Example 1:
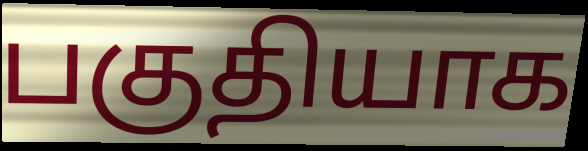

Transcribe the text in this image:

பகுதியாக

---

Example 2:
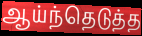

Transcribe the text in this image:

ஆய்ந்தெடுத்த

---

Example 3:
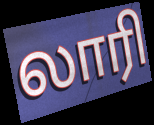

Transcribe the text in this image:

லாரி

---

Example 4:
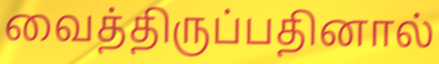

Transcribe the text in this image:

வைத்திருப்பதினால்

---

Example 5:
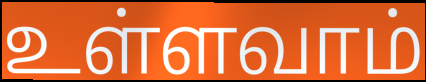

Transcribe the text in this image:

உள்ளவாம்